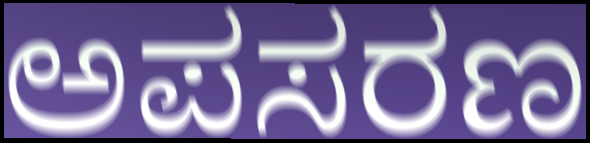
ಅಪಸರಣ